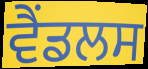
ਵੈਂਡਲਸ